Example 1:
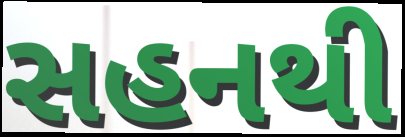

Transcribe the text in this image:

સહનથી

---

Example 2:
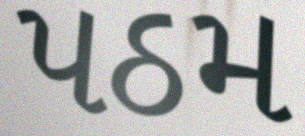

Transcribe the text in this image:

પઠમ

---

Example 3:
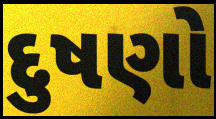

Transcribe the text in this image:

દુષણો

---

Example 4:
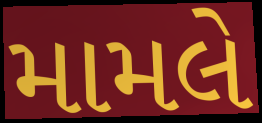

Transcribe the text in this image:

મામલે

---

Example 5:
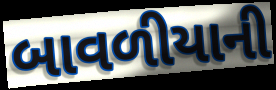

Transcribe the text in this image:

બાવળીયાની